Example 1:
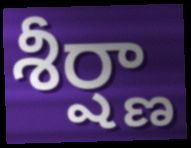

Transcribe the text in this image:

శీర్ష్ణా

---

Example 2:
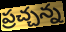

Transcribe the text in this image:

ప్రచ్చన్న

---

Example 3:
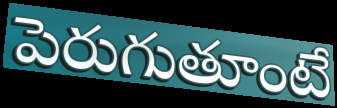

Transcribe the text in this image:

పెరుగుతూంటే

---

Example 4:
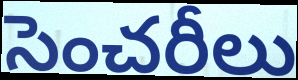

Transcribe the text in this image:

సెంచరీలు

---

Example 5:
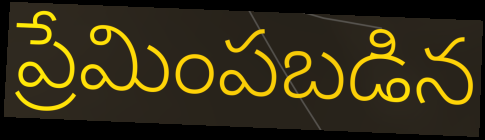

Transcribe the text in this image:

ప్రేమింపబడిన